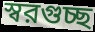
স্বরগুচ্ছ